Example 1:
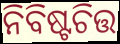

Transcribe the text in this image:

ନିବିଷ୍ଟଚିତ୍ତ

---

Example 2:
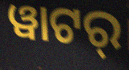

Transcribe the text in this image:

ୱାଟର୍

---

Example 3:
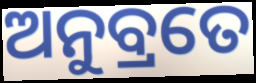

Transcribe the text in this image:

ଅନୁବ୍ରତେ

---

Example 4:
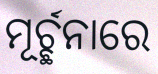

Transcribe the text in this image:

ମୂର୍ଚ୍ଛନାରେ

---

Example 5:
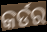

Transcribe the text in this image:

କର୍ଡର